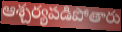
ఆశ్చర్యపడిపోతారు